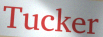
Tucker